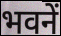
भवनें